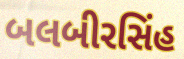
બલબીરસિંહ